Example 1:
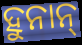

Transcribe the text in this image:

ହୁନାନ୍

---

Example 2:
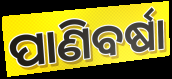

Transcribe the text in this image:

ପାଣିବର୍ଷା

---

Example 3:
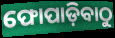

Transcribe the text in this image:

ଫୋପାଡ଼ିବାଠୁ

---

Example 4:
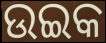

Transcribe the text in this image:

ଉଇକ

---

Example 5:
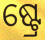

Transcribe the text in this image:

ଷ୍ଟ୍ରେ